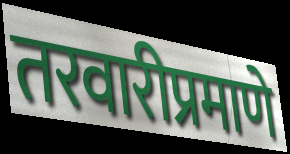
तरवारीप्रमाणे